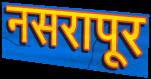
नसरापूर